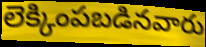
లెక్కింపబడినవారు